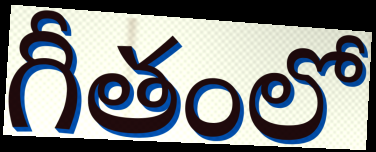
గీతంలో